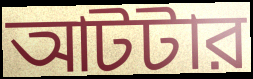
আটটার